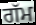
ਗੱਮ